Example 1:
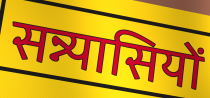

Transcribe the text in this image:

सन्न्यासियों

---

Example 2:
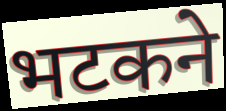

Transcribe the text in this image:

भटकने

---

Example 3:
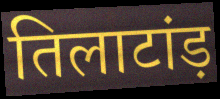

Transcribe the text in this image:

तिलाटांड़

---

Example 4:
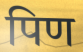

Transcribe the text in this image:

पिण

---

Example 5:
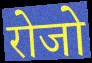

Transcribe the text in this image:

रोजो